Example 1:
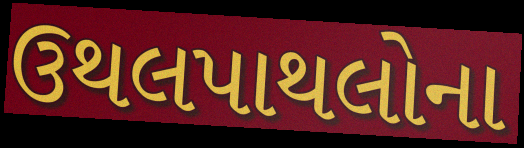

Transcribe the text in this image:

ઉથલપાથલોના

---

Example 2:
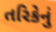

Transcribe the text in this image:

તરિકેનું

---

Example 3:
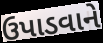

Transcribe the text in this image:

ઉપાડવાને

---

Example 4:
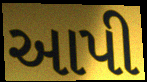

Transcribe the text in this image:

આપી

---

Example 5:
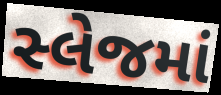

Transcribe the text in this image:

સ્લેજમાં